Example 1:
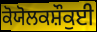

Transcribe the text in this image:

ਕੋਯੋਲਕਸ਼ੌਕੁਈ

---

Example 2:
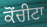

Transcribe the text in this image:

ਕੋਂਚੀਟਾ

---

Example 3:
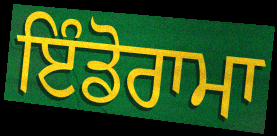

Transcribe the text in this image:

ਇੰਡੋਰਾਮਾ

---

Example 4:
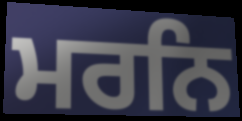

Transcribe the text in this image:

ਮਰਨਿ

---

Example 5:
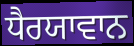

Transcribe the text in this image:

ਧੈਰਯਾਵਾਨ